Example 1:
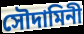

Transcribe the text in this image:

সৌদামিনী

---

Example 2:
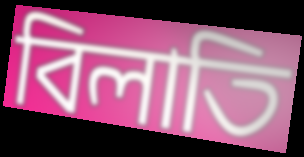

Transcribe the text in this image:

বিলাতি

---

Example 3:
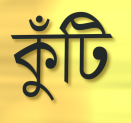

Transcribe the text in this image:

কুঁটি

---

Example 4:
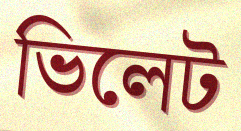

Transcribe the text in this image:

ভিলেট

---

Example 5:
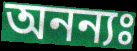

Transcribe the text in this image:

অনন্যঃ